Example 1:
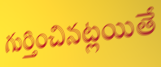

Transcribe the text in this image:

గుర్తించినట్లయితే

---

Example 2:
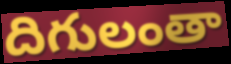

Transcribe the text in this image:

దిగులంతా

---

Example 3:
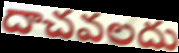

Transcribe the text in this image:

దాచవలదు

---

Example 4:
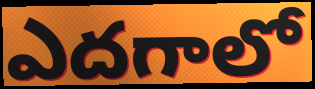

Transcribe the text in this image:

ఎదగాలో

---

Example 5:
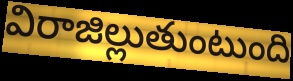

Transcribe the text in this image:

విరాజిల్లుతుంటుంది